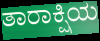
ತಾರಾಕ್ಷಿಯ